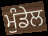
ਮੁੰਡੇਲ